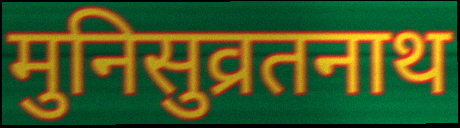
मुनिसुव्रतनाथ